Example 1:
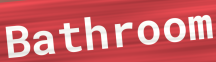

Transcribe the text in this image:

Bathroom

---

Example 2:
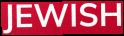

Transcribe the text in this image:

JEWISH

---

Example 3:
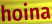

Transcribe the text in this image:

hoina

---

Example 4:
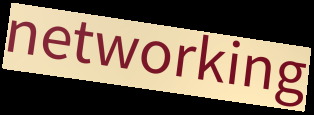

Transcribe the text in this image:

networking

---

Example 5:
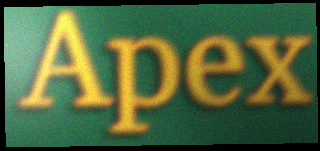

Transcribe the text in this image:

Apex